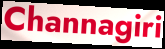
Channagiri